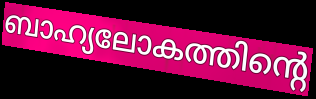
ബാഹ്യലോകത്തിന്റെ